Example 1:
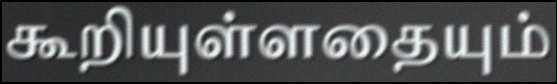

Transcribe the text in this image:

கூறியுள்ளதையும்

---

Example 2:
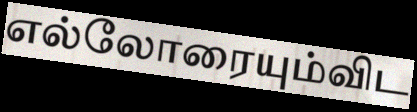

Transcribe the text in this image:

எல்லோரையும்விட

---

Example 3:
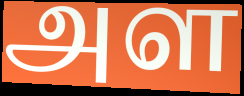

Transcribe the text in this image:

அள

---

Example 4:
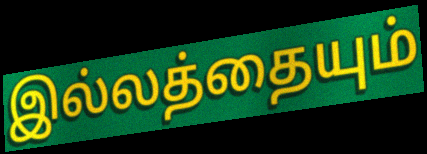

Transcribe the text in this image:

இல்லத்தையும்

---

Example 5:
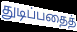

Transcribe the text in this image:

துடிப்பதைத்